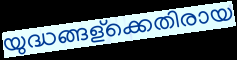
യുദ്ധങ്ങള്ക്കെതിരായ